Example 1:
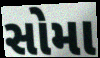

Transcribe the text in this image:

સોમા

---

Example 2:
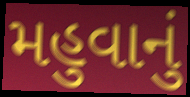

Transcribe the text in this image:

મહુવાનું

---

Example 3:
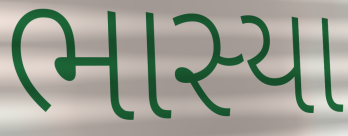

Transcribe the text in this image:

ભાસ્યા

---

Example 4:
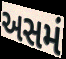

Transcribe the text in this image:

અસમં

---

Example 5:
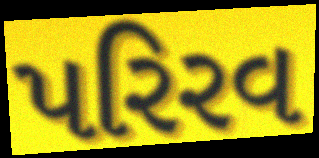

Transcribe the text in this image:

પરિરવ